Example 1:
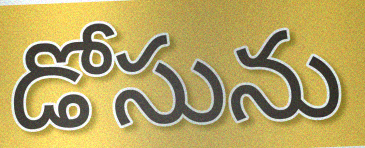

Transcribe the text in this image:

డోసును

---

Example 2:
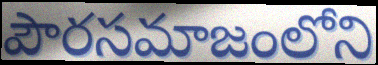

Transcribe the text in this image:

పౌరసమాజంలోని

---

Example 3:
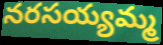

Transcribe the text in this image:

నరసయ్యమ్మ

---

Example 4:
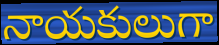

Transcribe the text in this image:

నాయకులుగా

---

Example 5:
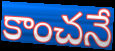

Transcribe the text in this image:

కాంచనే